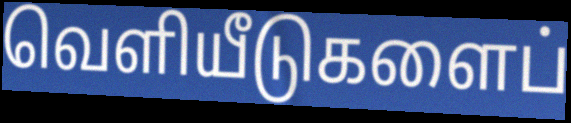
வெளியீடுகளைப்